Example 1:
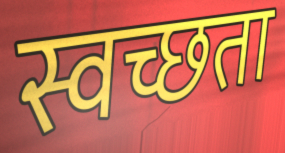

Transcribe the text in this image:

स्वच्छता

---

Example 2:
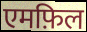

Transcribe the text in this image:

एमफ़िल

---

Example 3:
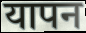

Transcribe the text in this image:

यापन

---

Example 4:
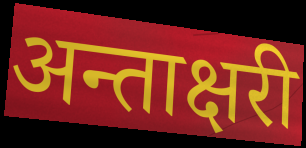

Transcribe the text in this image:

अन्ताक्षरी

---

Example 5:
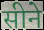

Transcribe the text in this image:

सीने